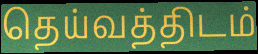
தெய்வத்திடம்